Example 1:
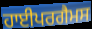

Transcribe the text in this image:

ਹਾਈਪਰਗੈਮਸ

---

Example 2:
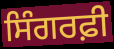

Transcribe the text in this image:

ਸਿੰਗਰਫ਼ੀ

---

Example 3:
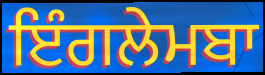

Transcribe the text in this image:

ਇੰਗਲੇਮਬਾ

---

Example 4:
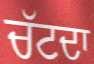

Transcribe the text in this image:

ਚੱਟਦਾ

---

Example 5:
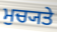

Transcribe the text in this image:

ਮੁਚ੍ਯਤੇ